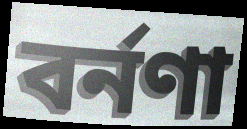
বর্নণা